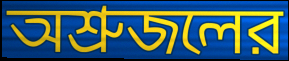
অশ্রুজলের